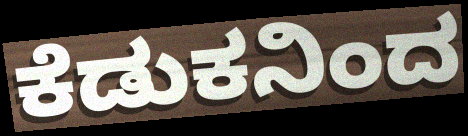
ಕೆಡುಕನಿಂದ